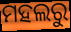
ମହଲରୁ